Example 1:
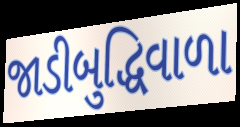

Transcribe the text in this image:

જાડીબુદ્ધિવાળા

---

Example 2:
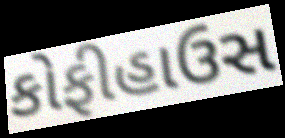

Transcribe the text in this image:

કોફીહાઉસ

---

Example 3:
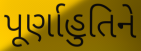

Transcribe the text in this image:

પૂર્ણાહુતિને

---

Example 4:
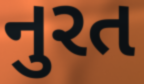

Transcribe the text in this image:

નુરત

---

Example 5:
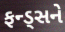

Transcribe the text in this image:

ફન્ડ્સને